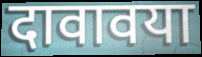
दावावया